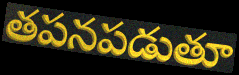
తపనపడుతూ